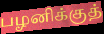
பழனிக்குத்